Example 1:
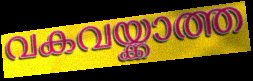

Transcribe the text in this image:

വകവയ്ക്കാത്ത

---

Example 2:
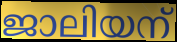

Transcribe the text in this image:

ജാലിയന്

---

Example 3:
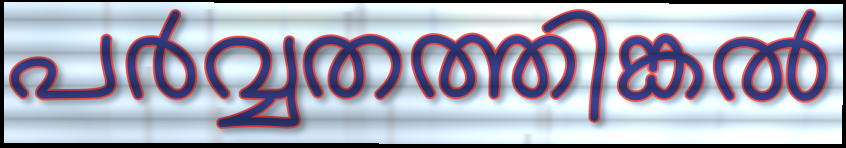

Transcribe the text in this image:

പർവ്വതത്തിങ്കൽ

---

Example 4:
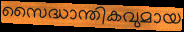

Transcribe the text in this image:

സൈദ്ധാന്തികവുമായ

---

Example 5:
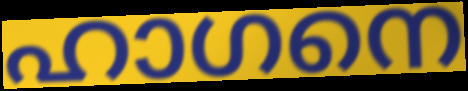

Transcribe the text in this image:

ഹാഗനെ